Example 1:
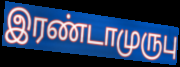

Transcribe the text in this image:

இரண்டாமுருபு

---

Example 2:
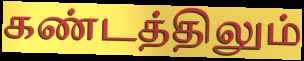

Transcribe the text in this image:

கண்டத்திலும்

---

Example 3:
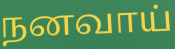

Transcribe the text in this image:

நனவாய்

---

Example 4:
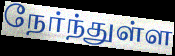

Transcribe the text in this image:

நேர்ந்துள்ள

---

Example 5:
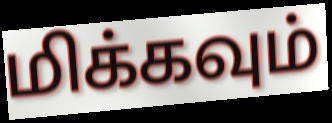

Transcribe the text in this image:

மிக்கவும்